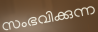
സംഭവിക്കുന്ന